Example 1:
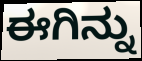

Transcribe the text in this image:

ಈಗಿನ್ನು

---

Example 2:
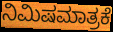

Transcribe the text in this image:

ನಿಮಿಷಮಾತ್ರಕೆ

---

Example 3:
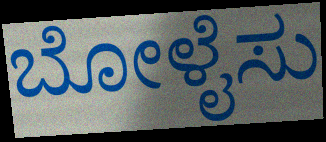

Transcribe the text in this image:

ಬೋಳೈಸು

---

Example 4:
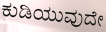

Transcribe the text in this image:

ಕುಡಿಯುವುದೇ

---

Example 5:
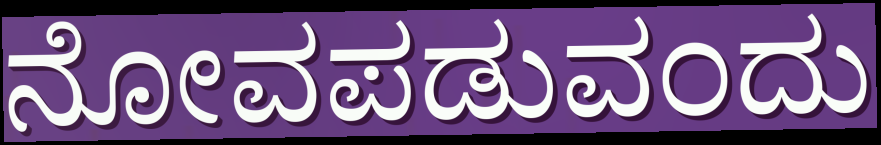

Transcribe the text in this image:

ನೋವಪಡುವಂದು